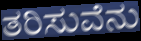
ತರಿಸುವೆನು